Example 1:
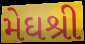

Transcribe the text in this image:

મેઘશ્રી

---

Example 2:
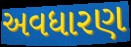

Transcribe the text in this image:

અવધારણ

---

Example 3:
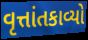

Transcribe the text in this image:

વૃત્તાંતકાવ્યો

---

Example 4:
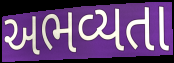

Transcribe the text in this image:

અભવ્યતા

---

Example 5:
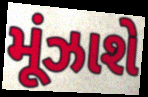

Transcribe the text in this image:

મૂંઝાશે